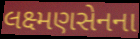
લક્ષ્મણસેનના